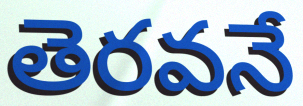
తెరవనే